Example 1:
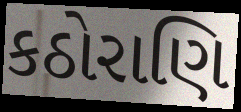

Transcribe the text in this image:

કઠોરાણિ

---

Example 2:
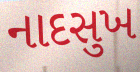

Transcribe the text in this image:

નાદસુખ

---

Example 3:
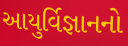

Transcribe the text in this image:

આયુર્વિજ્ઞાનનો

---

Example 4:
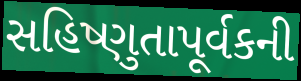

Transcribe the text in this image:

સહિષ્ણુતાપૂર્વકની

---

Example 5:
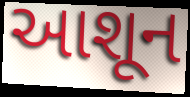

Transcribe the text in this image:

આશૂન